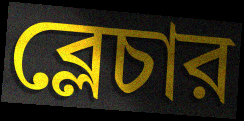
ব্লেচার